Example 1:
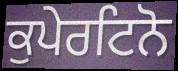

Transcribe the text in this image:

ਕੁਪੇਰਟਿਨੋ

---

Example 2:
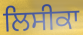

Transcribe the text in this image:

ਲਿਸੀਕਾ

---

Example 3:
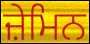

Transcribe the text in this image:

ਜ਼ੇਮਿਨ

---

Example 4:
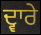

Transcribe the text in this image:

ਦ੍ਵਾਰੇ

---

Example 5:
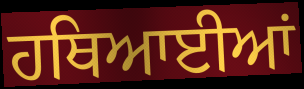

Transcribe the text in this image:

ਹਥਿਆਈਆਂ